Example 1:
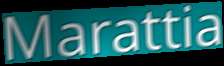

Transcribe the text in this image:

Marattia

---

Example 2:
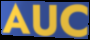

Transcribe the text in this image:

AUC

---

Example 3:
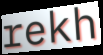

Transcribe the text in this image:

rekh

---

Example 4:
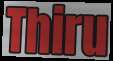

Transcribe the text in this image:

Thiru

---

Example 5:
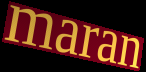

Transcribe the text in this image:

maran